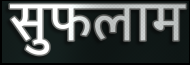
सुफलाम